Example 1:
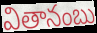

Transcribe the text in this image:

వితానంబు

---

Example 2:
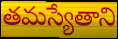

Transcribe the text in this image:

తమస్యేతాని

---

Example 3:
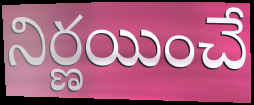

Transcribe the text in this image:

నిర్ణయించే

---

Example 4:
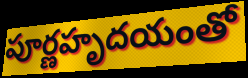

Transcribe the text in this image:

పూర్ణహృదయంతో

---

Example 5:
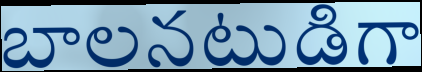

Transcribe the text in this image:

బాలనటుడిగా